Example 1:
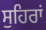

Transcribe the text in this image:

ਸੁਹਿਰਾਂ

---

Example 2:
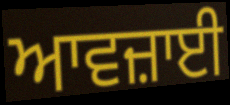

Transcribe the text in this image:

ਆਵਜ਼ਾਈ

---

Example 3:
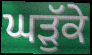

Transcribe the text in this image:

ਘੜੁੱਕੇ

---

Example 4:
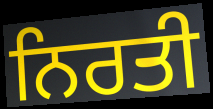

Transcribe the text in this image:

ਨਿਰਤੀ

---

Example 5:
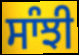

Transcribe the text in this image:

ਸਾੰਝੀ